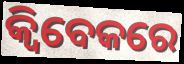
କ୍ୱିବେକରେ